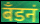
बँडनं